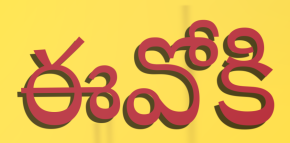
ఈవోకి